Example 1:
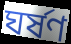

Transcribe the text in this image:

ঘর্ষণ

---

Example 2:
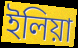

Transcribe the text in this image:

ইলিয়া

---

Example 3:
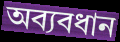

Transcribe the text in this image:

অব্যবধান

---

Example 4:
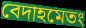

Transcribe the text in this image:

বেদাহমেতং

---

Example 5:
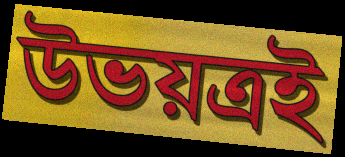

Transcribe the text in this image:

উভয়ত্রই